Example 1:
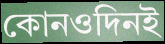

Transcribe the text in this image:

কোনওদিনই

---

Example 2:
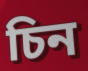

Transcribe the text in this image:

চিন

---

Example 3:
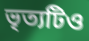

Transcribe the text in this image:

ভৃত্যটিও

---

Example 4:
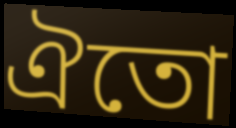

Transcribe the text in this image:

ঐতো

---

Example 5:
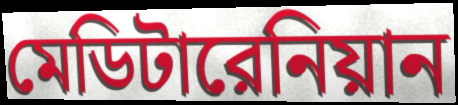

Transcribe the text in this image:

মেডিটারেনিয়ান